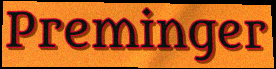
Preminger